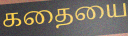
கதையை